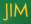
JIM